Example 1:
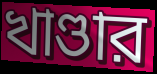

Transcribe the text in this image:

খাণ্ডার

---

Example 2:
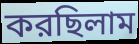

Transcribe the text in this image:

করছিলাম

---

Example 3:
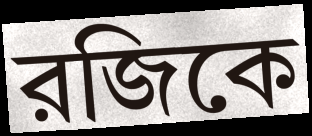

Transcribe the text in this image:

রজিকে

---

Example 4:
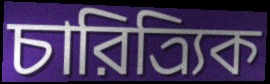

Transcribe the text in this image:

চারিত্র্যিক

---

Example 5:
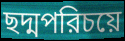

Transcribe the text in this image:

ছদ্মপরিচয়ে